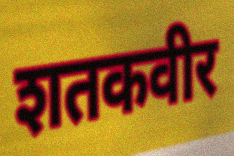
शतकवीर